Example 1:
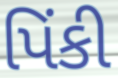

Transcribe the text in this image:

પિંકી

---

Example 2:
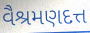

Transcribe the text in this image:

વૈશ્રમણદત્ત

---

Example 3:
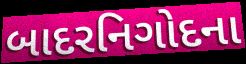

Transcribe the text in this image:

બાદરનિગોદના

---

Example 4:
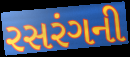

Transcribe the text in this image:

રસરંગની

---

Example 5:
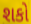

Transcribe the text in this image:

શકો